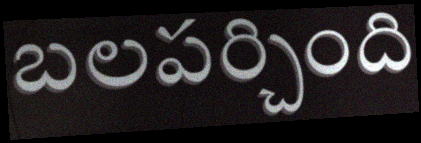
బలపర్చింది